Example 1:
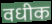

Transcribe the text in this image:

वधीक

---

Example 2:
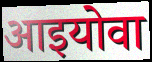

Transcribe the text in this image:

आइयोवा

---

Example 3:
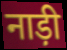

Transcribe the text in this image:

नाड़ी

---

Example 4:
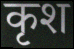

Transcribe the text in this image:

कृश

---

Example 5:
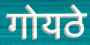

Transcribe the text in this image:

गोयठे